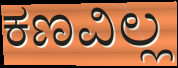
ಕಣವಿಲ್ಲ